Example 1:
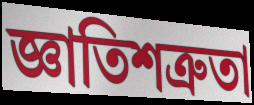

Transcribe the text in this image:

জ্ঞাতিশত্রুতা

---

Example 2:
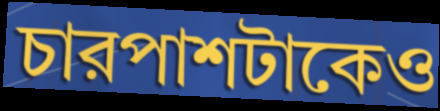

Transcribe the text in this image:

চারপাশটাকেও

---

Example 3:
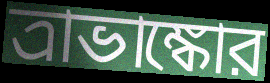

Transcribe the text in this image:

ত্রাভাঙ্কোর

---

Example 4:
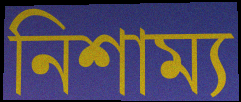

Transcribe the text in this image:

নিশাম্য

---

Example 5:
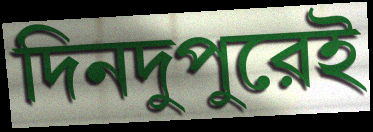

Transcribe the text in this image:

দিনদুপুরেই